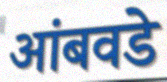
आंबवडे